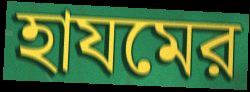
হাযমের